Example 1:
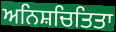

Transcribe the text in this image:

ਅਨਿਸ਼ਚਿਤਿਤਾ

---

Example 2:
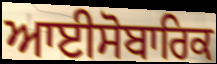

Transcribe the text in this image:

ਆਈਸੋਬਾਰਿਕ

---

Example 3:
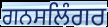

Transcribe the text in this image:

ਗਨਸਲਿੰਗਰ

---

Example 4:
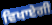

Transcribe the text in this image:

ਵਿਖਾਏਗੀ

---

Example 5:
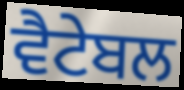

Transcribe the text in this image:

ਵੈਟੇਬਲ